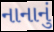
નાનાનું